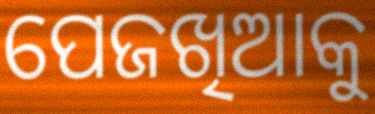
ପେଜଖିଆକୁ